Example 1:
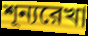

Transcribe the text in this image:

শূন্যরেখা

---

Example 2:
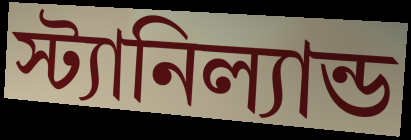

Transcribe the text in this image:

স্ট্যানিল্যান্ড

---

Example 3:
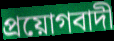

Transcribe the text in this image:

প্রয়োগবাদী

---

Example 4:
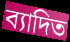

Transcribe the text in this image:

ব্যাদিত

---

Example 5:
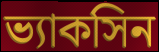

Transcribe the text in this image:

ভ্যাকসিন